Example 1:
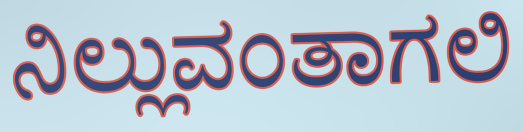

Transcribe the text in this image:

ನಿಲ್ಲುವಂತಾಗಲಿ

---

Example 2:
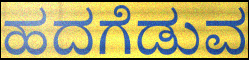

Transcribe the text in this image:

ಹದಗೆಡುವ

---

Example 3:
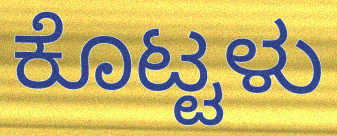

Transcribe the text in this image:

ಕೊಟ್ಟಳು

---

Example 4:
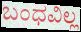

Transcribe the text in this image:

ಬಂಧವಿಲ್ಲ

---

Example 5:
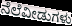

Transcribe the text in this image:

ನೆಲೆವೀಡುಗಳು